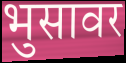
भुसावर